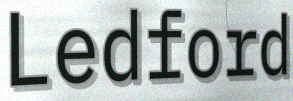
Ledford